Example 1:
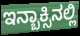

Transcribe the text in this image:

ಇನ್ಬಾಕ್ಸಿನಲ್ಲಿ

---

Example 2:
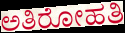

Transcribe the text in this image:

ಅತಿರೋಹತಿ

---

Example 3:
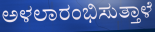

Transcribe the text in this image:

ಅಳಲಾರಂಭಿಸುತ್ತಾಳೆ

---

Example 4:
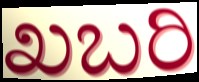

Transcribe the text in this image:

ಖಬರಿ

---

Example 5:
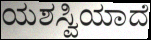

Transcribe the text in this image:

ಯಶಸ್ವಿಯಾದೆ